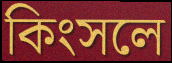
কিংসলে